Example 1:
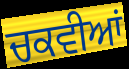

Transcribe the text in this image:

ਚਕਵੀਆਂ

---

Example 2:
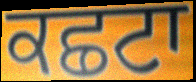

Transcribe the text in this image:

ਕਛਟਾ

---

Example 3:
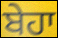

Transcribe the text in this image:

ਬੇਹਾ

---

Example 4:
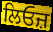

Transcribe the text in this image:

ਲਿਓਜ਼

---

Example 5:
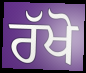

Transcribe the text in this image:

ਰੱਖੋ